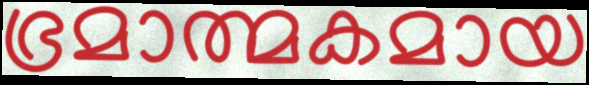
ഭ്രമാത്മകമായ